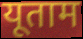
यूताम